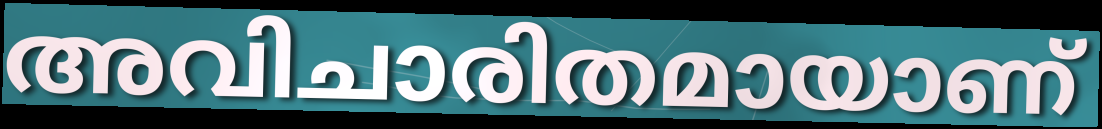
അവിചാരിതമായാണ്